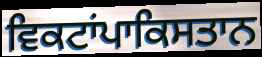
ਵਿਕਟਾਂਪਾਕਿਸਤਾਨ